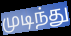
முடிந்து